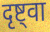
दृष्ट्वा